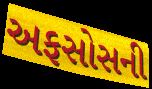
અફસોસની